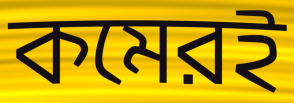
কমেরই